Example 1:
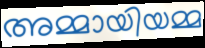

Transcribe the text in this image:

അമ്മായിയമ്മ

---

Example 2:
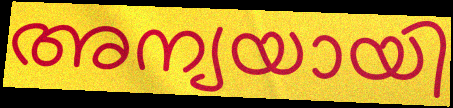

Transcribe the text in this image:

അന്യയായി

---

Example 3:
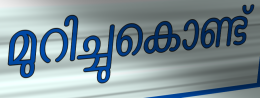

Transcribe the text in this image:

മുറിച്ചുകൊണ്ട്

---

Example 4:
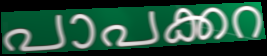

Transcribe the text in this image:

പാപക്കറ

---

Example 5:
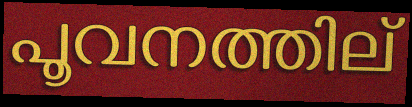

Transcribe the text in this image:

പൂവനത്തില്